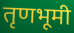
तृणभूमी